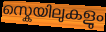
സ്കെയിലുകളും